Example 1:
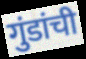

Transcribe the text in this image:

गुंडांची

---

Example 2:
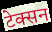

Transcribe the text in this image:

टेक्सन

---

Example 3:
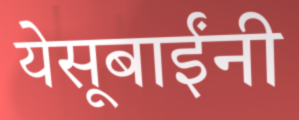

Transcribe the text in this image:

येसूबाईंनी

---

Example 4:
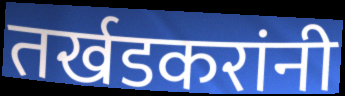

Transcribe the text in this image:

तर्खडकरांनी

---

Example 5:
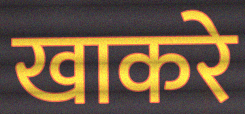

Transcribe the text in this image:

खाकरे